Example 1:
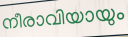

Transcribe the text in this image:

നീരാവിയായും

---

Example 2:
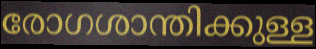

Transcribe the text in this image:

രോഗശാന്തിക്കുള്ള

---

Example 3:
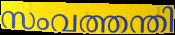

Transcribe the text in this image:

സംവത്തന്തി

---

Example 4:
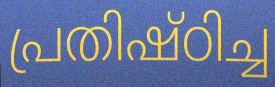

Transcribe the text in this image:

പ്രതിഷ്ഠിച്ച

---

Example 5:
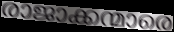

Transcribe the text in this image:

രാജാക്കന്മാരെ